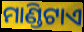
ମାଣ୍ଡିଟାଏ